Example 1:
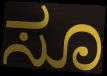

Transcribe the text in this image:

ಸೂ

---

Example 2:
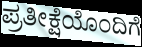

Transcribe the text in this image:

ಪ್ರತೀಕ್ಷೆಯೊಂದಿಗೆ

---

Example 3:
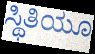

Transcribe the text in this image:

ಸ್ಥಿತಿಯೂ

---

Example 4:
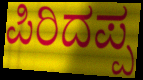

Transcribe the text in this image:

ಪಿರಿದಪ್ಪ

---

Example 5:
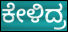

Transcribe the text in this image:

ಕೇಳಿದ್ರ